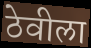
ठेवीला